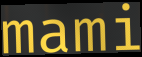
mami